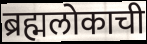
ब्रह्मलोकाची